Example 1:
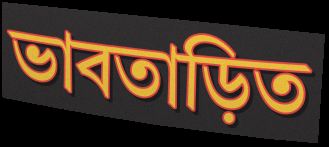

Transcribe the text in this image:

ভাবতাড়িত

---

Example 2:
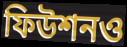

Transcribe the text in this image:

ফিউশনও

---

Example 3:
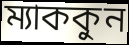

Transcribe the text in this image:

ম্যাককুন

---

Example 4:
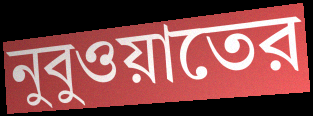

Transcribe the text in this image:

নুবুওয়াতের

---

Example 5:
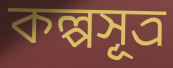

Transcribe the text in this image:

কল্পসূত্র